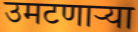
उमटणाऱ्या